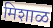
मिशाळ